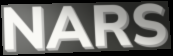
NARS